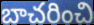
బాచరించి